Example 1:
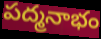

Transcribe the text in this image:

పద్మనాభం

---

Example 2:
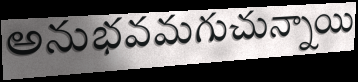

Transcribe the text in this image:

అనుభవమగుచున్నాయి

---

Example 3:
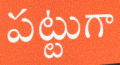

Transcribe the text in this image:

పట్టుగా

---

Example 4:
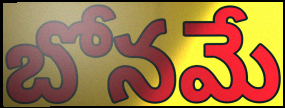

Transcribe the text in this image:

బోనమే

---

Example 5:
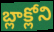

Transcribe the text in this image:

బ్లాక్లోని